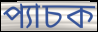
প্যাচক